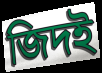
জিদই